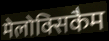
मेलोक्सिकैम